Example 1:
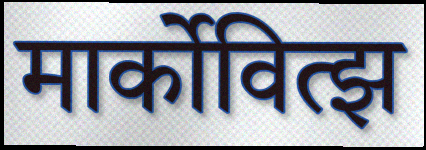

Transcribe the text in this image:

मार्कोवित्झ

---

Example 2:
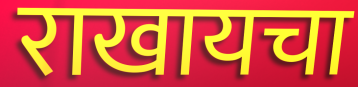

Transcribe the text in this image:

राखायचा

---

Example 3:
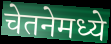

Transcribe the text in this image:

चेतनेमध्ये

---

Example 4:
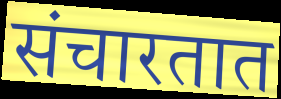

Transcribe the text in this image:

संचारतात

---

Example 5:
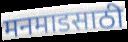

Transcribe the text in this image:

मनमाडसाठी